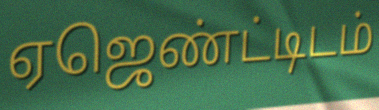
ஏஜெண்ட்டிடம்